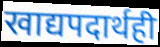
खाद्यपदार्थही